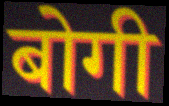
बोगी